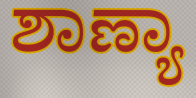
ಶಾಣ್ಯಾ